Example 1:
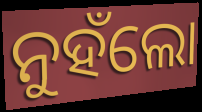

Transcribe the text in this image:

ନୁହଁଲୋ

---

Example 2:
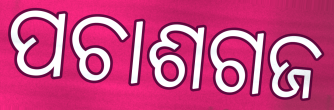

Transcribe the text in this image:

ପଚାଶଗଜ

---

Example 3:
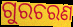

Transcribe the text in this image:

ଗୁରଚରଣ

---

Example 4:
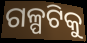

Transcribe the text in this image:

ଗଳ୍ପଟିକୁ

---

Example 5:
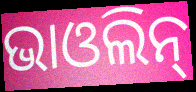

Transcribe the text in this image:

ଭାଓଲିନ୍